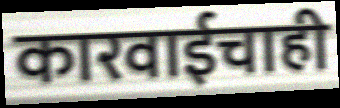
कारवाईचाही